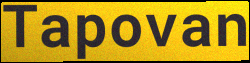
Tapovan